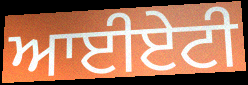
ਆਈਏਟੀ